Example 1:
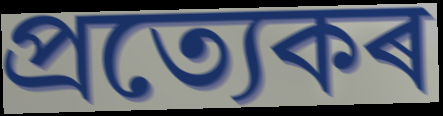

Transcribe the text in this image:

প্ৰত্যেকৰ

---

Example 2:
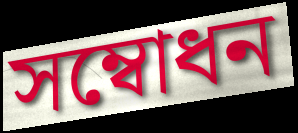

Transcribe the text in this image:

সম্বোধন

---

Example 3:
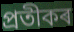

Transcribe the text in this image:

প্ৰতীকৰ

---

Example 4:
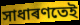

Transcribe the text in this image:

সাধাৰণতেই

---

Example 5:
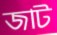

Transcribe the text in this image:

জাট